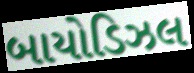
બાયોડિઝલ